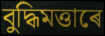
বুদ্ধিমত্তাৰে